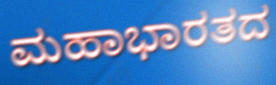
ಮಹಾಭಾರತದ